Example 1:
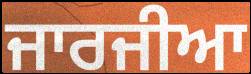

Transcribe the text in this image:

ਜਾਰਜੀਆ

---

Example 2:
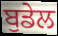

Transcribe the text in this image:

ਬੁਡੇਲ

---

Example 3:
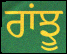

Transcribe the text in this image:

ਰਾਂਝੂ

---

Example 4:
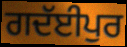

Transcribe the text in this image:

ਗਦੱਈਪੁਰ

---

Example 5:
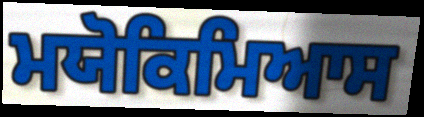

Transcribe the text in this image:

ਮਯੋਕਿਮਿਆਸ